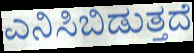
ಎನಿಸಿಬಿಡುತ್ತದೆ